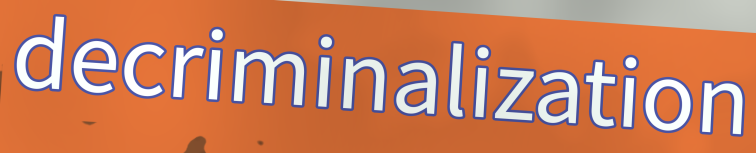
decriminalization